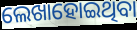
ଲେଖାହୋଇଥିବା